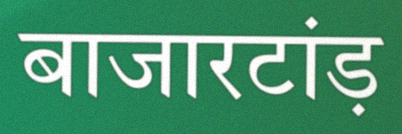
बाजारटांड़